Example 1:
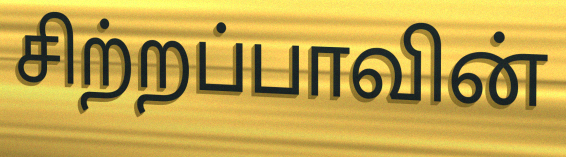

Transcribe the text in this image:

சிற்றப்பாவின்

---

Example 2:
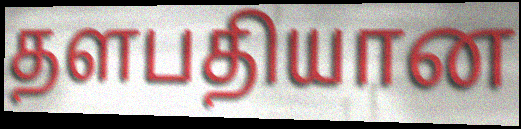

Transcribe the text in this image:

தளபதியான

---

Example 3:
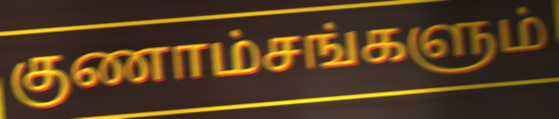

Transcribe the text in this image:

குணாம்சங்களும்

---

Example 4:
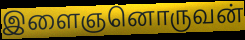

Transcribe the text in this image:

இளைஞனொருவன்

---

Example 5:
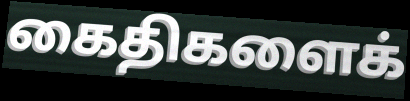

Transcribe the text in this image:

கைதிகளைக்